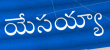
యేసయ్యా